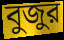
বুজুর